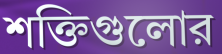
শক্তিগুলোর